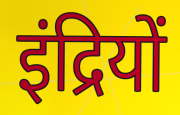
इंद्रियों